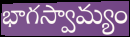
భాగస్వామ్యం